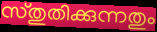
സ്തുതിക്കുന്നതും